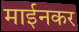
माईनकर